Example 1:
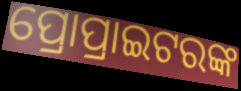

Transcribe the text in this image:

ପ୍ରୋପ୍ରାଇଟରଙ୍କ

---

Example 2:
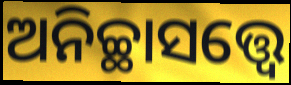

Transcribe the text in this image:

ଅନିଚ୍ଛାସତ୍ତ୍ବେ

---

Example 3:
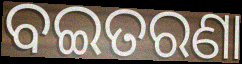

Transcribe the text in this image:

ବଇତରଣା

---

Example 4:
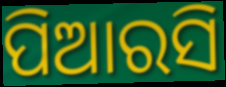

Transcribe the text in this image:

ପିଆରସି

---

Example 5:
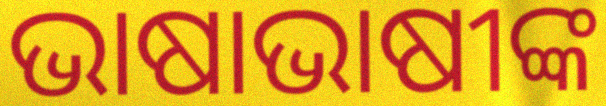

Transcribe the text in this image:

ଭାଷାଭାଷୀଙ୍କ